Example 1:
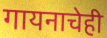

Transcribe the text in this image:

गायनाचेही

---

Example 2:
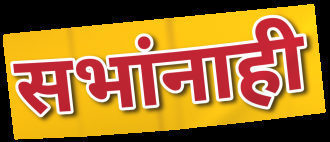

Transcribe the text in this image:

सभांनाही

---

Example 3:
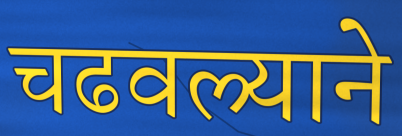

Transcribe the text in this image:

चढवल्याने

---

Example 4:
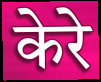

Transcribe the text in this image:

केरे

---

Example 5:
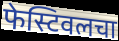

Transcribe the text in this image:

फेस्टिवलचा